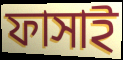
ফাসাই